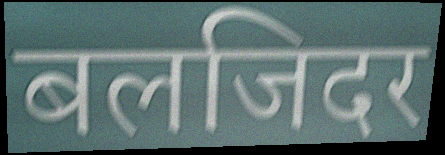
बलजिदर